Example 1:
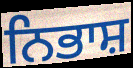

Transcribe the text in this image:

ਨਿਭਾਸ਼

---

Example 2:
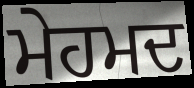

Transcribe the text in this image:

ਮੇਹਮਦ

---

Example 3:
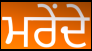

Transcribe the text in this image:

ਮਰੇਂਦੇ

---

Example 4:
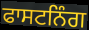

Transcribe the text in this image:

ਫਾਸਟਨਿੰਗ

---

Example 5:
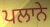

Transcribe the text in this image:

ਪਲਾਨੇ